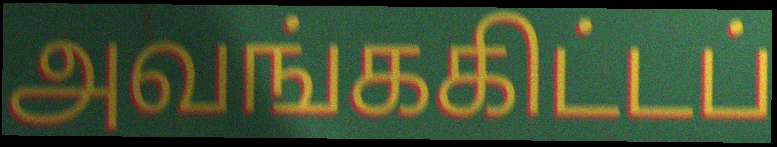
அவங்ககிட்டப்